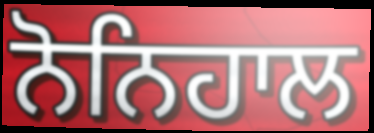
ਨੋਨਿਹਾਲ